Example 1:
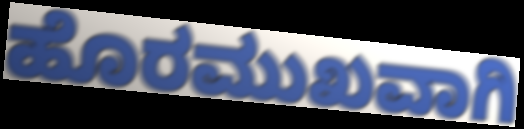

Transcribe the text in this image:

ಹೊರಮುಖವಾಗಿ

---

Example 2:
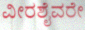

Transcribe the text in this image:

ವೀರಶೈವರೇ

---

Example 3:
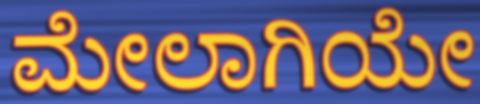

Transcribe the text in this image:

ಮೇಲಾಗಿಯೇ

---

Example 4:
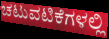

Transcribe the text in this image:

ಚಟುವಟಿಕೆಗಳಲ್ಲಿ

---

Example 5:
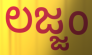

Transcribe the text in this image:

ಲಜ್ಜಂ